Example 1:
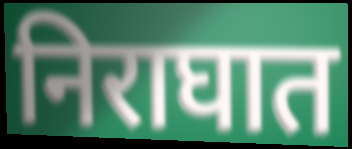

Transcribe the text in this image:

निराघात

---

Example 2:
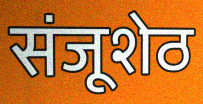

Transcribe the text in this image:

संजूशेठ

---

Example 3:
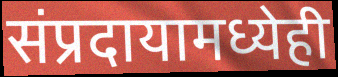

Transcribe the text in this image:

संप्रदायामध्येही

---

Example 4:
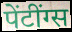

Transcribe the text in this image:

पेंटींग्स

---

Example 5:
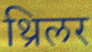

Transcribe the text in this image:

थ्रिलर